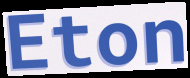
Eton